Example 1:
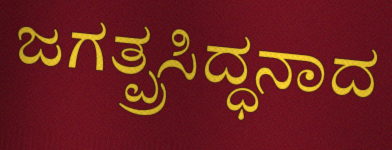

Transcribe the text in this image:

ಜಗತ್ಪ್ರಸಿದ್ಧನಾದ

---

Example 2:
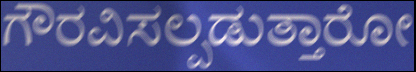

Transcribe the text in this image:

ಗೌರವಿಸಲ್ಪಡುತ್ತಾರೋ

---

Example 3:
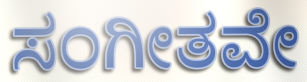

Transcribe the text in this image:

ಸಂಗೀತವೇ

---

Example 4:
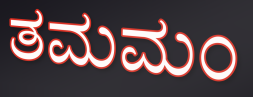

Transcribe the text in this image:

ತಮಮಂ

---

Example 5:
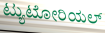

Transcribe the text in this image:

ಟ್ಯುಟೋರಿಯಲ್